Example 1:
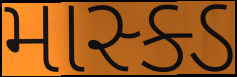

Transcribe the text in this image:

માસ્ક્ડ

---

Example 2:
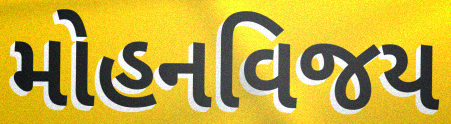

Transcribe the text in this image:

મોહનવિજય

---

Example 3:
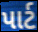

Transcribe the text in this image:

પાર્ટ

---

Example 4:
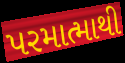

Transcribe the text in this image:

પરમાત્માથી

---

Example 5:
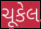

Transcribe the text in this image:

ચૂકેલ